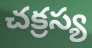
చక్రస్య